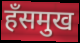
हँसमुख